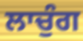
ਲਾਚੁੰਗ